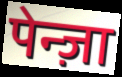
पेन्ज़ा